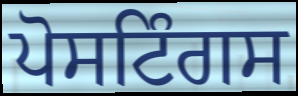
ਪੋਸਟਿੰਗਸ